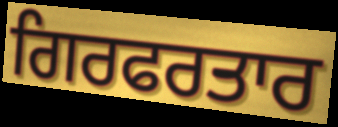
ਗਿਰਫਰਤਾਰ